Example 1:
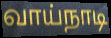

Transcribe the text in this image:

வாய்நாடி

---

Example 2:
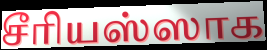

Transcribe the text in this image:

சீரியஸ்ஸாக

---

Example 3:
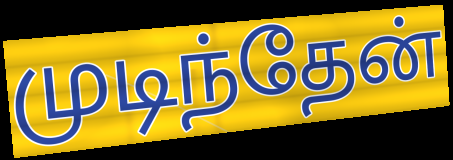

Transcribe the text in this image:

முடிந்தேன்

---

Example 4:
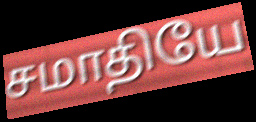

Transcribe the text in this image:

சமாதியே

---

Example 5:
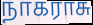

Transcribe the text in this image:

நாகராசு